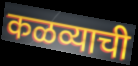
कळव्याची